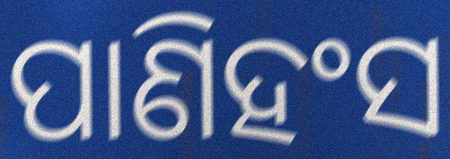
ପାଣିହଂସ